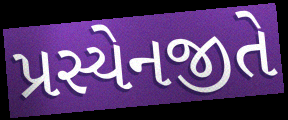
પ્રસ્યેનજીતે